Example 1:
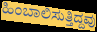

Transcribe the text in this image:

ಹಿಂಬಾಲಿಸುತ್ತಿದ್ದವು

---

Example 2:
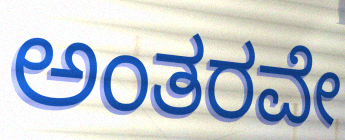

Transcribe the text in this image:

ಅಂತರವೇ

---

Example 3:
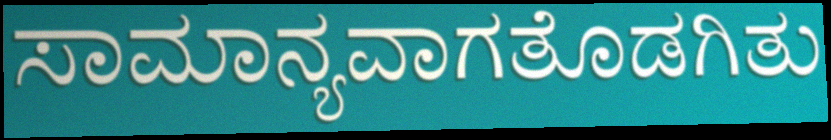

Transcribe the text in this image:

ಸಾಮಾನ್ಯವಾಗತೊಡಗಿತು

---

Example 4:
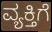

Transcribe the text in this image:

ವ್ಯಕ್ತಿಗೆ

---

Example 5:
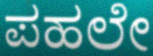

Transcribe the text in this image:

ಪಹಲೇ